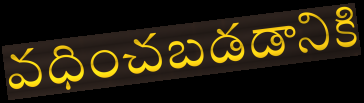
వధించబడడానికి